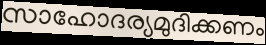
സാഹോദര്യമുദിക്കണം